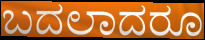
ಬದಲಾದರೂ